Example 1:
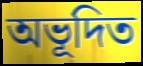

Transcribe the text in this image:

অভূদিত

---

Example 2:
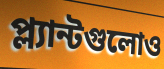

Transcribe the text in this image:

প্ল্যান্টগুলোও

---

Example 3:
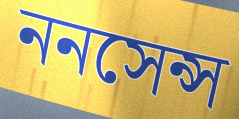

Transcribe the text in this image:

ননসেন্স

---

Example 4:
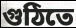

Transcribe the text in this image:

গুঠিতে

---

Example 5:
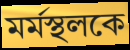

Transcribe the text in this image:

মর্মস্থলকে